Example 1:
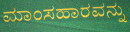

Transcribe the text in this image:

ಮಾಂಸಹಾರವನ್ನು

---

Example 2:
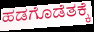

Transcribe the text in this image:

ಹಡಗೊಡೆತಕ್ಕೆ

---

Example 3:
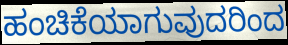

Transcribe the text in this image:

ಹಂಚಿಕೆಯಾಗುವುದರಿಂದ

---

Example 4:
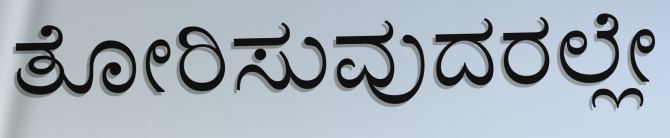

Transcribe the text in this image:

ತೋರಿಸುವುದರಲ್ಲೇ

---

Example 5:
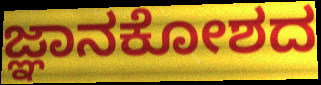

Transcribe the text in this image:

ಜ್ಞಾನಕೋಶದ